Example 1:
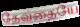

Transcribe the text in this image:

தேவதையே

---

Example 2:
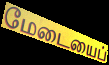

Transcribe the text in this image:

மேடையைப்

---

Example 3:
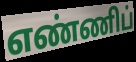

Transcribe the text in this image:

எண்ணிப்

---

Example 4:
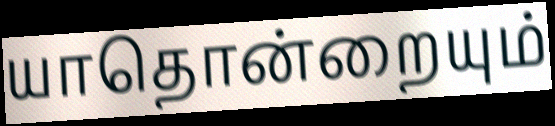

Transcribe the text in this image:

யாதொன்றையும்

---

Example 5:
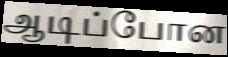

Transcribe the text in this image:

ஆடிப்போன